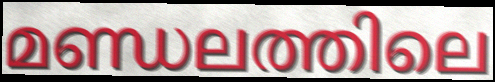
മണ്ഡലത്തിലെ